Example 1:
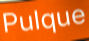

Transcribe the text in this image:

Pulque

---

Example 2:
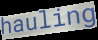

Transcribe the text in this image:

hauling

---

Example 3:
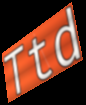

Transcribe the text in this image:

Ttd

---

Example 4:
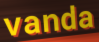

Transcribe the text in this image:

vanda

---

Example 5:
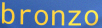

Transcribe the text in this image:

bronzo